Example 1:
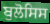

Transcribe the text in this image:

ਬੁਲੋਸਿਸ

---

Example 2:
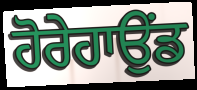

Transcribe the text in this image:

ਹੋਰੇਹਾਉਂਡ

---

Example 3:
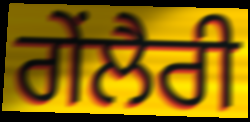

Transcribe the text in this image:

ਗੇਂਲੈਰੀ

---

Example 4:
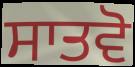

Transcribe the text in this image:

ਸਾਤਵੋ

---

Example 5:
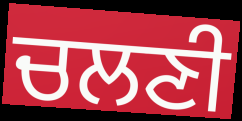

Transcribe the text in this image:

ਚਲਣੀ